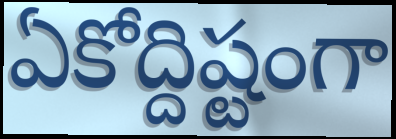
ఏకోద్దిష్టంగా